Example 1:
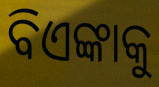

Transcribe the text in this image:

ବିଏଙ୍କାକୁ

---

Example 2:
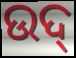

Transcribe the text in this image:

ଉଦ୍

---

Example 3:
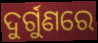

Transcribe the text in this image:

ଦୁର୍ଗୁଣରେ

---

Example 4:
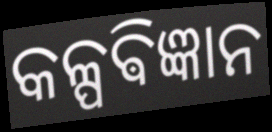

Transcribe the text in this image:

କଳ୍ପଵିଜ୍ଞାନ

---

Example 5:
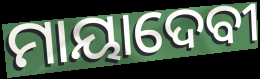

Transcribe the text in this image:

ମାୟାଦେବୀ